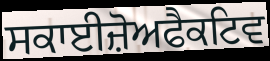
ਸਕਾਈਜ਼ੋਅਫੈਕਟਿਵ